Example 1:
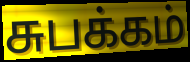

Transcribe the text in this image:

சுபக்கம்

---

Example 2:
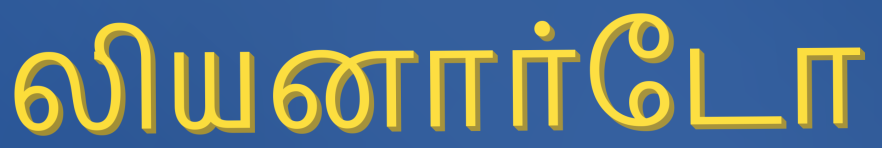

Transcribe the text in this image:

லியனார்டோ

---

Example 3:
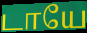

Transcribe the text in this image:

டாயே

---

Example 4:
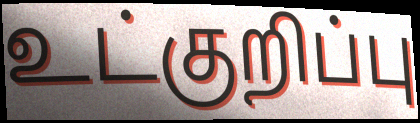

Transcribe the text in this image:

உட்குறிப்பு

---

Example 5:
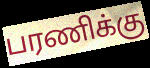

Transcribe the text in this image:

பரணிக்கு